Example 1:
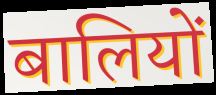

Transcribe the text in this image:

बालियों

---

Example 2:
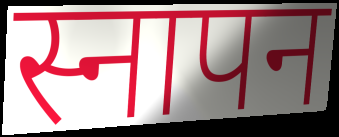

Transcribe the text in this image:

स्नापन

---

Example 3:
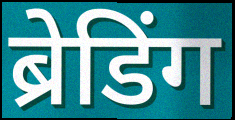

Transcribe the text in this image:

ब्रेडिंग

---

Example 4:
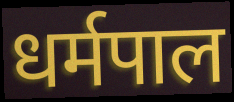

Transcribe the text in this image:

धर्मपाल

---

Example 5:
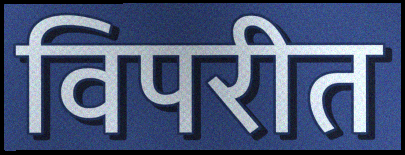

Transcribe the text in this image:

विपरीत